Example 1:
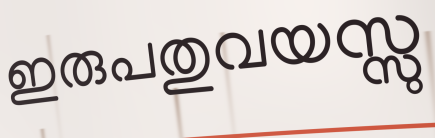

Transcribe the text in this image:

ഇരുപതുവയസ്സു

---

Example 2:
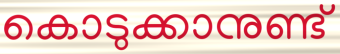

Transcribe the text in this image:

കൊടുക്കാനുണ്ട്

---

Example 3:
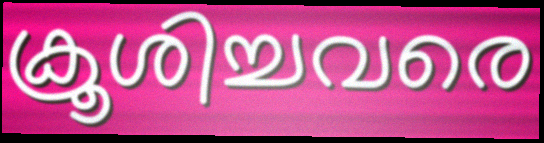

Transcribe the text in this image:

ക്രൂശിച്ചവരെ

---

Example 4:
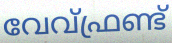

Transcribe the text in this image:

വേവ്ഫ്രണ്ട്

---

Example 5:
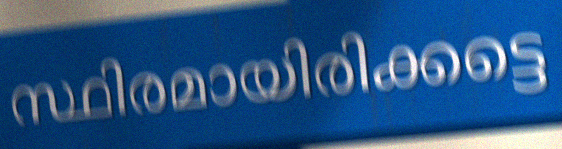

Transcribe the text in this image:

സ്ഥിരമായിരിക്കട്ടെ